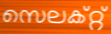
സെലക്റ്റ്